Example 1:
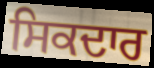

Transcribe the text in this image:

ਸਿਕਦਾਰ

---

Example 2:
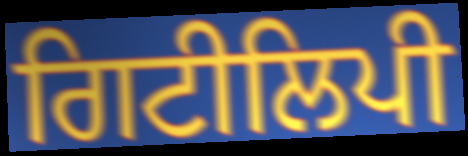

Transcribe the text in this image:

ਗਿਟੀਲਿਪੀ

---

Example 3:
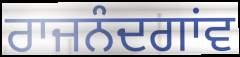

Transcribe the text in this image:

ਰਾਜਨੰਦਗਾਂਵ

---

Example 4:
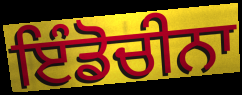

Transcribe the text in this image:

ਇੰਡੋਚੀਨਾ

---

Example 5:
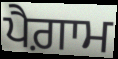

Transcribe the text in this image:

ਪੈਗ਼ਾਮ